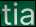
tia